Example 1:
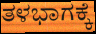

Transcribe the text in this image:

ತಳಭಾಗಕ್ಕೆ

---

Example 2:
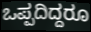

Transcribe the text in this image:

ಒಪ್ಪದಿದ್ದರೂ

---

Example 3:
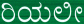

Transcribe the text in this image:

ರಿಯಲೀ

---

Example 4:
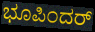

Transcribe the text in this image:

ಭೂಪಿಂದರ್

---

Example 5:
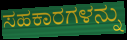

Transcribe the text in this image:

ಸಹಕಾರಗಳನ್ನು